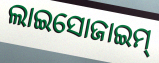
ଲାଇସୋଜାଇମ୍